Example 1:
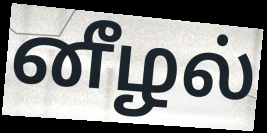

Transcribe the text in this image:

னீழல்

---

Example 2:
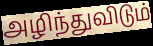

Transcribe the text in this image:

அழிந்துவிடும்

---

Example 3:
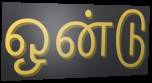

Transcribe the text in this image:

ஒன்டு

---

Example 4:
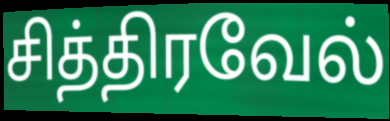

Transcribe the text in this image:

சித்திரவேல்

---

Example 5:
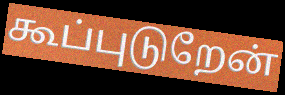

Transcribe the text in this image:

கூப்புடுறேன்